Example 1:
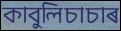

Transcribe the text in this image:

কাবুলিচাচাৰ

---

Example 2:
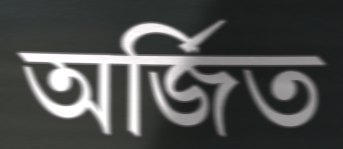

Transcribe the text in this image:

অৰ্জিত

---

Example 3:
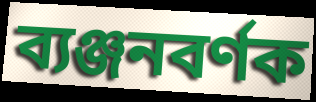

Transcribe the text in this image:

ব্যঞ্জনবৰ্ণক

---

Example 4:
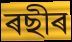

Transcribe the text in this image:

ৰছীৰ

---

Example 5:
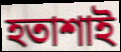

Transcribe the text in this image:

হতাশাই